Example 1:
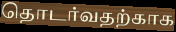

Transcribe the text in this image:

தொடர்வதற்காக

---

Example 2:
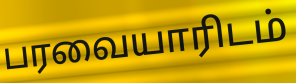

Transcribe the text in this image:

பரவையாரிடம்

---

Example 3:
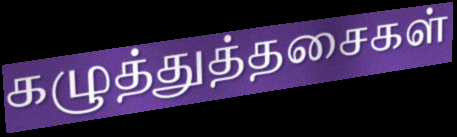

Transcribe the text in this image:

கழுத்துத்தசைகள்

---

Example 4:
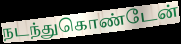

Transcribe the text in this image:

நடந்துகொண்டேன்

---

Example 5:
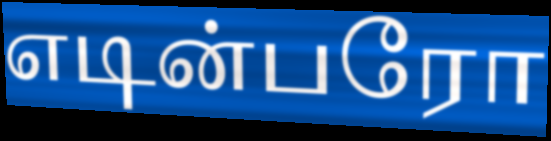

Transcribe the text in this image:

எடின்பரோ